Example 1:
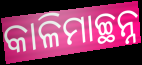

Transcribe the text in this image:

କାଳିମାଚ୍ଛନ୍ନ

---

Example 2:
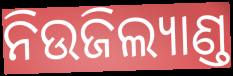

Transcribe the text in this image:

ନିଉଜିଲ୍ୟାଣ୍ଡ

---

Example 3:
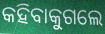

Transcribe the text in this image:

କହିବାକୁଗଲେ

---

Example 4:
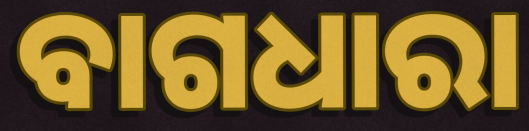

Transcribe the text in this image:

ବାଗଧାରା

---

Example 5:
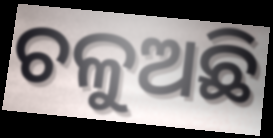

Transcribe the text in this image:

ଚଳୁଅଛି